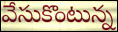
వేసుకొంటున్న